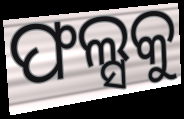
ଫଲ୍ସକୁ